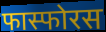
फास्फोरस